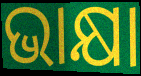
ଭାକ୍ଷା